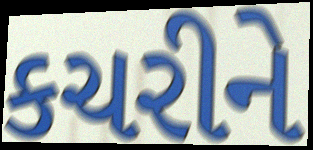
કચરીને